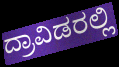
ದ್ರಾವಿಡರಲ್ಲಿ